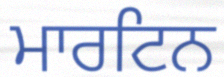
ਮਾਰਟਿਨ